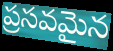
ప్రసవమైన